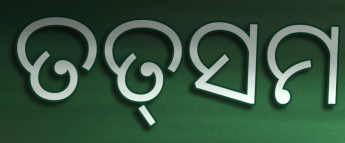
ତତ୍‌ସମ